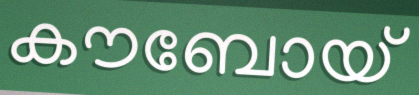
കൗബോയ്